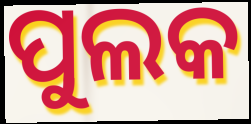
ପୁଲକ